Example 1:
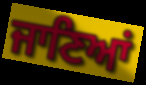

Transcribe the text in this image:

ਜਾਣਿਆਂ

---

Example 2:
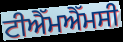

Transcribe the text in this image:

ਟੀਐੱਮਐੱਮਸੀ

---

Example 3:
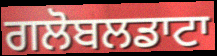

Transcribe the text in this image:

ਗਲੋਬਲਡਾਟਾ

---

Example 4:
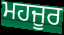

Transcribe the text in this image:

ਮਹਜੂਰ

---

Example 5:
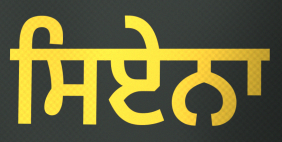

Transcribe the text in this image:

ਸਿਏਨਾ